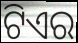
ଟିଏର